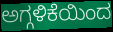
ಅಗ್ಗಳಿಕೆಯಿಂದ